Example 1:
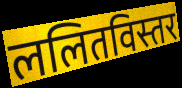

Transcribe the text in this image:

ललितविस्तर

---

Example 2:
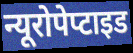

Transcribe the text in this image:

न्यूरोपेप्टाइड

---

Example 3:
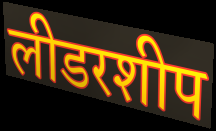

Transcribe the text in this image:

लीडरशीप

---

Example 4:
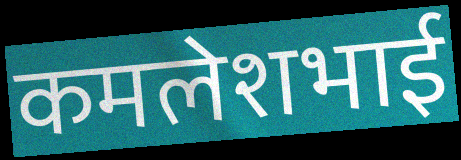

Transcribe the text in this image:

कमलेशभाई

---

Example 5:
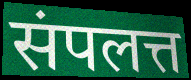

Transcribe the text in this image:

संपलत्त